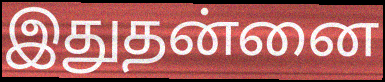
இதுதன்னை